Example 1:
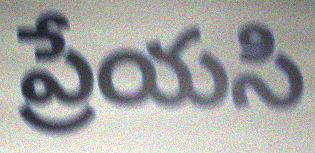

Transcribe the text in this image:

ప్రేయసి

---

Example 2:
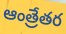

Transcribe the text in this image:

ఆంత్రేతర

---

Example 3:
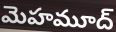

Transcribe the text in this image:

మెహమూద్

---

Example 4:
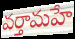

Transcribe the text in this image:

వర్తామహే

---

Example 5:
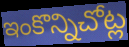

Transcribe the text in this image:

ఇంకొన్నిచోట్ల